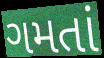
ગમતાં